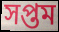
সপ্তম